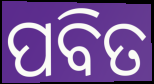
ପବିତ